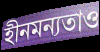
হীনমন্যতাও